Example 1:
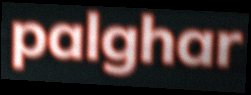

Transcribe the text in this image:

palghar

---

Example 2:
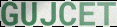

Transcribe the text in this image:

GUJCET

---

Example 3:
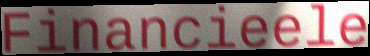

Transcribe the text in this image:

Financieele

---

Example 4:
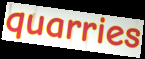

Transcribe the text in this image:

quarries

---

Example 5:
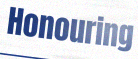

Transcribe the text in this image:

Honouring